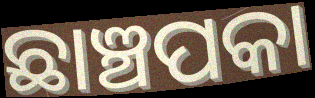
ଛାଞ୍ଚପକା